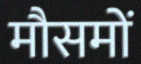
मौसमों